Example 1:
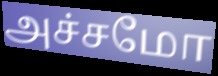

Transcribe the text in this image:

அச்சமோ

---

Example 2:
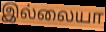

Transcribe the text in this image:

இல்லையா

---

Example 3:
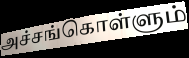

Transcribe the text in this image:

அச்சங்கொள்ளும்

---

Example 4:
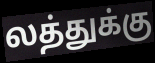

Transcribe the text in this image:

லத்துக்கு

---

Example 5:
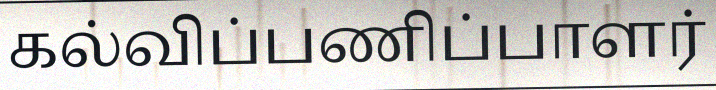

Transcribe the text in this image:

கல்விப்பணிப்பாளர்